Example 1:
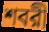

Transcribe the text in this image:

শবরী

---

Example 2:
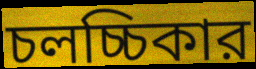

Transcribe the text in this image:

চলচ্চিকার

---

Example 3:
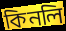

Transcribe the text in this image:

কিনলি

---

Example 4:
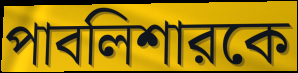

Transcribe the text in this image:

পাবলিশারকে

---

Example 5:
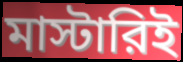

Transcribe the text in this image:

মাস্টারিই